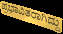
ಪ್ರಭಾವಿತರಾಗಿದ್ದು